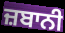
ਜ਼ਬਾਨੀ